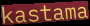
kastama